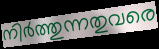
നിർത്തുന്നതുവരെ